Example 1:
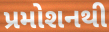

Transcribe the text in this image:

પ્રમોશનથી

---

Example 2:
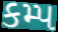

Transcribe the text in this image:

કમ્પ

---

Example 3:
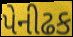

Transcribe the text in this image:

પેનીઢક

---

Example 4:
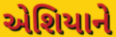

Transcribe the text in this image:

એશિયાને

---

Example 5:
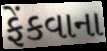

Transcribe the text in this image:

ફેંકવાના